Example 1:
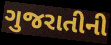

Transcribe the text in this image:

ગુજરાતીની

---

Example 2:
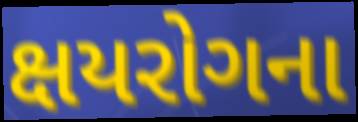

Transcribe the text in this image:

ક્ષયરોગના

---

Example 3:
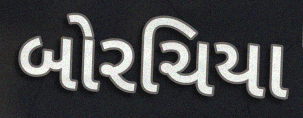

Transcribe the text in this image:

બોરચિયા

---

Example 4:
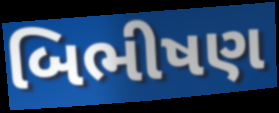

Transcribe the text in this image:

બિભીષણ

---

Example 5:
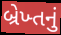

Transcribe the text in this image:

બ્રેખ્તનું